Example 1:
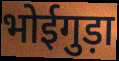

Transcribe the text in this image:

भोईगुड़ा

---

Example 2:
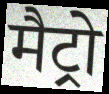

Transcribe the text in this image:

मैट्रो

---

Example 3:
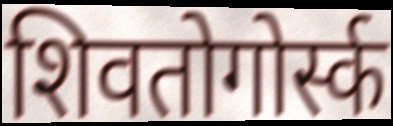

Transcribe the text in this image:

शिवतोगोर्स्क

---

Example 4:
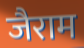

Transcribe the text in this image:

जैराम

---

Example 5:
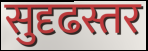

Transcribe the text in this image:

सुदृढस्तर